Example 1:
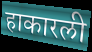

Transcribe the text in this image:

हाकारली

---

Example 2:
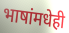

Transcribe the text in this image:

भाषांमधेही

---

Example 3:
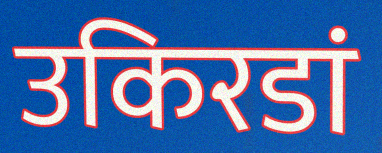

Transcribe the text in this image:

उकिरडां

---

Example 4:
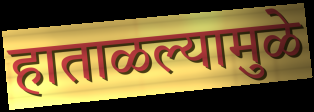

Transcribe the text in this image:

हाताळल्यामुळे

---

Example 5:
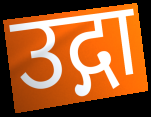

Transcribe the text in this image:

उद्गा